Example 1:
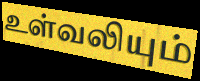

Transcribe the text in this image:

உள்வலியும்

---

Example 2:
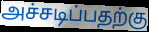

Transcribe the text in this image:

அச்சடிப்பதற்கு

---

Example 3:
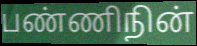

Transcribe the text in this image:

பண்ணிநின்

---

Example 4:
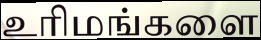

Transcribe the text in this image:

உரிமங்களை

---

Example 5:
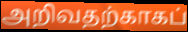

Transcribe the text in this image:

அறிவதற்காகப்